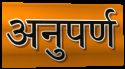
अनुपर्ण